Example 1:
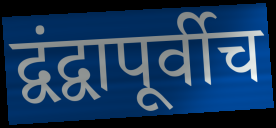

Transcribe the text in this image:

द्वंद्वापूर्वीच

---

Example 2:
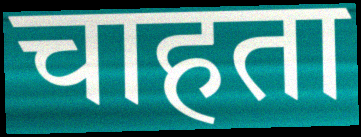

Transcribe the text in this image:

चाहता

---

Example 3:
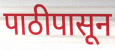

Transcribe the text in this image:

पाठीपासून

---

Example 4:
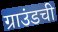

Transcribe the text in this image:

ग्राउंडची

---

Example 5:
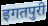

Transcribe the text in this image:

इगतपुरी